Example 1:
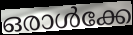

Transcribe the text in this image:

ഒരാൾക്കേ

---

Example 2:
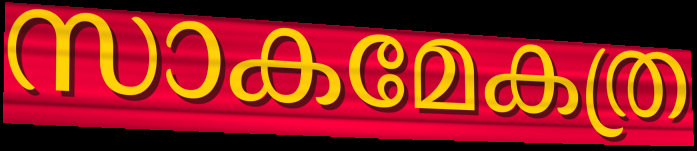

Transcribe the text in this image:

സാകമേകത്ര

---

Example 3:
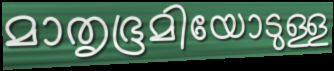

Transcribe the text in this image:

മാതൃഭൂമിയോടുള്ള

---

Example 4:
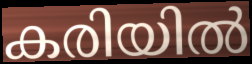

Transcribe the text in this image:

കരിയിൽ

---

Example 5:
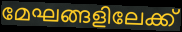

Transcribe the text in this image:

മേഘങ്ങളിലേക്ക്